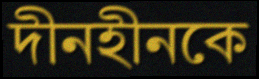
দীনহীনকে